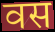
वस